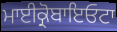
ਮਾਈਕ੍ਰੋਬਾਇਓਟਾ